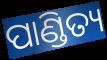
ପାଣ୍ଡିତ୍ୟ